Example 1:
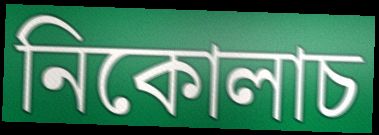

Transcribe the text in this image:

নিকোলাচ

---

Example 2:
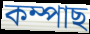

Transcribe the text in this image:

কম্পাছ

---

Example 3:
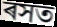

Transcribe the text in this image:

ৰসত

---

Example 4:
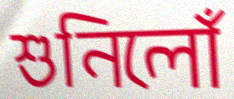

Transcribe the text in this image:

শুনিলোঁ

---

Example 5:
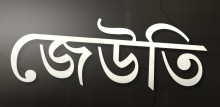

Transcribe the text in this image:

জেউতি